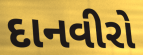
દાનવીરો